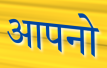
आपनो